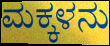
ಮಕ್ಕಳನು